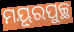
ମୟୂରପୁଚ୍ଛ